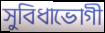
সুবিধাভোগী